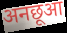
अनछूआ